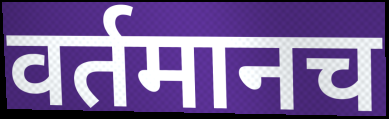
वर्तमानच